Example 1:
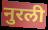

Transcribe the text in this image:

नुरली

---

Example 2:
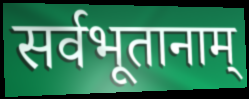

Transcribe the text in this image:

सर्वभूतानाम्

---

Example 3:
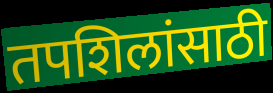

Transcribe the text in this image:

तपशिलांसाठी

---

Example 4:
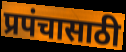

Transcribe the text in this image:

प्रपंचासाठी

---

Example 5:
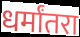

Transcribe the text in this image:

धर्मांतरा